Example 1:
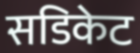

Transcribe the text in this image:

सडिकेट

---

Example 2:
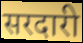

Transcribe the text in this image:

सरदारी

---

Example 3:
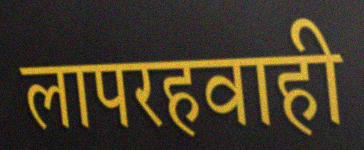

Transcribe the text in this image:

लापरहवाही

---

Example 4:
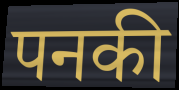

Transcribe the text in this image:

पनकी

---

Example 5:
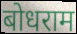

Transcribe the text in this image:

बोधराम